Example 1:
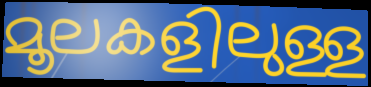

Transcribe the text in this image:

മൂലകളിലുള്ള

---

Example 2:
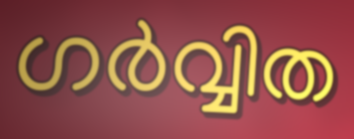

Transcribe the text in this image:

ഗർവ്വിത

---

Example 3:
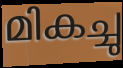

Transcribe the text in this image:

മികച്ചു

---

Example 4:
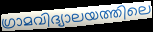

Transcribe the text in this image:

ഗ്രാമവിദ്യാലയത്തിലെ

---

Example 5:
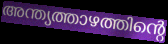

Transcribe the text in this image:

അന്ത്യത്താഴത്തിന്റെ